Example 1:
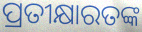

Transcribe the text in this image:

ପ୍ରତୀକ୍ଷାରତଙ୍କ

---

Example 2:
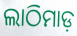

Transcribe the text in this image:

ଲାଠିମାଡ଼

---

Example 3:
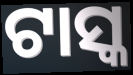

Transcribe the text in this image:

ଟାସ୍କ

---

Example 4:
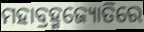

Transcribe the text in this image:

ମହାବ୍ରହ୍ମଜ୍ୟୋତିରେ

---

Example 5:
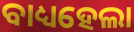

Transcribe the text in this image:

ବାଧ୍ୟହେଲା